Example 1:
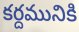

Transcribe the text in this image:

కర్దమునికి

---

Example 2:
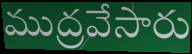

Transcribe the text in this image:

ముద్రవేసారు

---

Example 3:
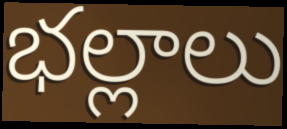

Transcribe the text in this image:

భల్లాలు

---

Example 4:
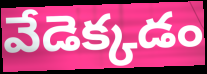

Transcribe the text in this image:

వేడెక్కడం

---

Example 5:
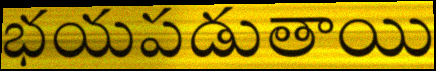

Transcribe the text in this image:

భయపడుతాయి